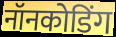
नॉनकोडिंग